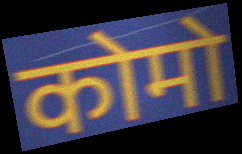
कोमो